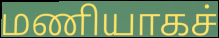
மணியாகச்